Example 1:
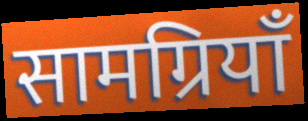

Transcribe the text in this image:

सामग्रियाँ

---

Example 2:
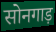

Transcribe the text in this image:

सोनगाड़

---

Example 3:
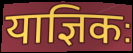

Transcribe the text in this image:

याज्ञिकः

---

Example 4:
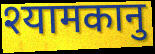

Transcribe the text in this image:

श्यामकानु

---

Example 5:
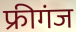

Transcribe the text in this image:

फ्रीगंज